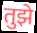
तुझे